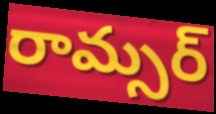
రామ్సర్